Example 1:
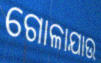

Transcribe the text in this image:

ଗୋଳାଯାଉ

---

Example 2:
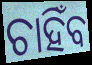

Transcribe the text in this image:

ଚାହିଁବ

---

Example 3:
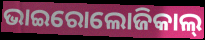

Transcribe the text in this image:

ଭାଇରୋଲୋଜିକାଲ୍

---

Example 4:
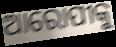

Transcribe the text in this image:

ଆରୋପୀକୁ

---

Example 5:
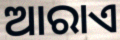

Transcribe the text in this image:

ଆରାଏ